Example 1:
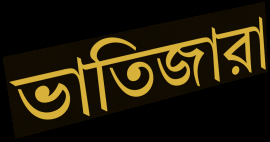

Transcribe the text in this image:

ভাতিজারা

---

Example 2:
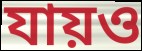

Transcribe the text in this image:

যায়ও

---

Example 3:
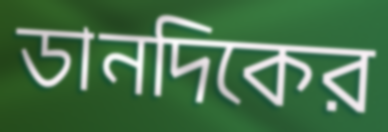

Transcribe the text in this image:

ডানদিকের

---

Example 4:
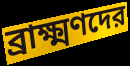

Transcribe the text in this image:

ব্রাক্ষ্মণদের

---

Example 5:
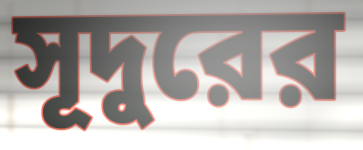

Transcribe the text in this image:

সূদুরের